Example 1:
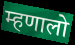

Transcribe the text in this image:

म्हणालो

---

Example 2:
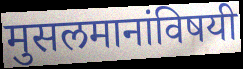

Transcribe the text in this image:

मुसलमानांविषयी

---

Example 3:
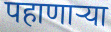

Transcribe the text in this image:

पहाणार्‍या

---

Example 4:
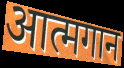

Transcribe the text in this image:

आत्मगान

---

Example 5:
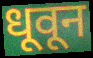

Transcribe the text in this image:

धूवून